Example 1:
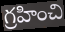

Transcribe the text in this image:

గ్రహించి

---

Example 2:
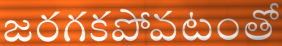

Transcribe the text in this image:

జరగకపోవటంతో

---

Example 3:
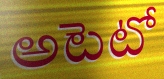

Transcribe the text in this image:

అటెటో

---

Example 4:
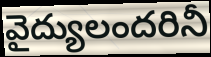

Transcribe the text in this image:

వైద్యులందరినీ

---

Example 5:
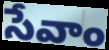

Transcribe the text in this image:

సేవాం